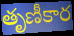
తృణీకార